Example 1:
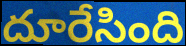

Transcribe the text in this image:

దూరేసింది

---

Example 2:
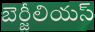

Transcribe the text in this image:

బెర్జీలియస్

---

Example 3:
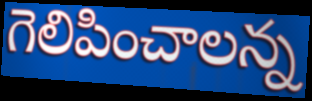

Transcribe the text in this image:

గెలిపించాలన్న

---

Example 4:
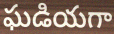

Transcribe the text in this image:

ఘడియగా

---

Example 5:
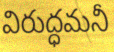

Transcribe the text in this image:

విరుద్ధమనీ